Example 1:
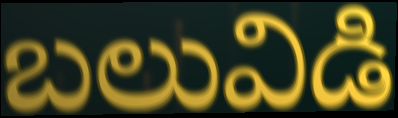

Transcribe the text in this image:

బలువిడి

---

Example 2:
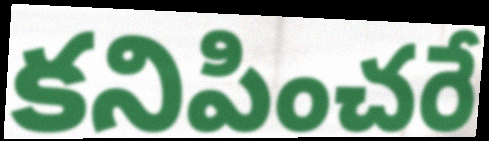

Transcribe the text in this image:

కనిపించరే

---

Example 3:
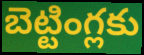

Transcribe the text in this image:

బెట్టింగ్లకు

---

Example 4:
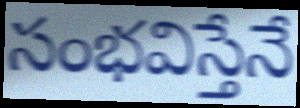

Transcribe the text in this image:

సంభవిస్తేనే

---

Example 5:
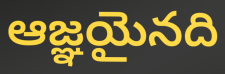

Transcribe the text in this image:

ఆజ్ఞయైనది